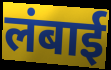
लंबाई